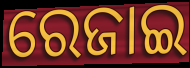
ରେଜାଇ